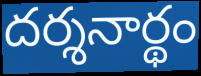
దర్శనార్థం